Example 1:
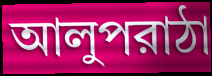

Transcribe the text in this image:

আলুপরাঠা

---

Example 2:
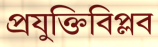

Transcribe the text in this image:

প্রযুক্তিবিপ্লব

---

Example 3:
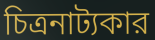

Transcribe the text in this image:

চিত্রনাট্যকার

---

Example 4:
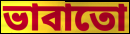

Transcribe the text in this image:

ভাবাতো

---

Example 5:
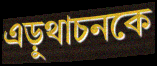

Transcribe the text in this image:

এড়ুথাচনকে